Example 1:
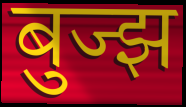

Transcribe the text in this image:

बुज्झ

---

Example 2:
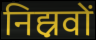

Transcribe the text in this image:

निह्नवों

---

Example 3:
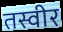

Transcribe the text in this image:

तस्‍वीर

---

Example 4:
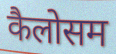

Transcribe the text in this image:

कैलोसम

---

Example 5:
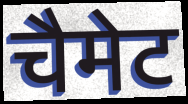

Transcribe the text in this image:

चैमेट